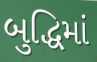
બુદ્ધિમાં